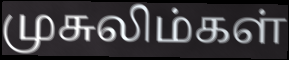
முசுலிம்கள்